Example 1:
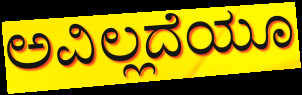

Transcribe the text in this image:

ಅವಿಲ್ಲದೆಯೂ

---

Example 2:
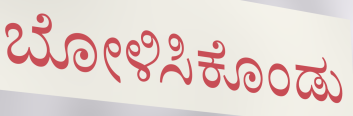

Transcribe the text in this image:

ಬೋಳಿಸಿಕೊಂಡು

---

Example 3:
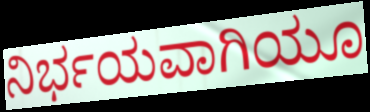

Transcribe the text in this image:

ನಿರ್ಭಯವಾಗಿಯೂ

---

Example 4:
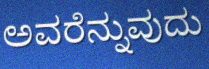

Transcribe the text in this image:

ಅವರೆನ್ನುವುದು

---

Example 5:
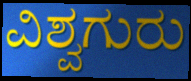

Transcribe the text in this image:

ವಿಶ್ವಗುರು